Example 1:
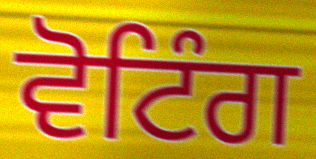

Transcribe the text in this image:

ਵੋਟਿੰਗ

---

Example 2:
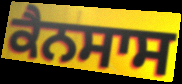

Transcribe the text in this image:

ਕੈਨਸਾਸ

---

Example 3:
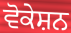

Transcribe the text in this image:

ਵੋਕੇਸ਼ਨ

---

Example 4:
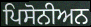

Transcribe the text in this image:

ਪਿਸੋਨੀਅਨ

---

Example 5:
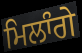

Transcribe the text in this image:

ਮਿਲਾੰਗੇ